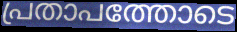
പ്രതാപത്തോടെ